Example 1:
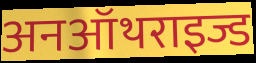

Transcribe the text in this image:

अनऑथराइज्ड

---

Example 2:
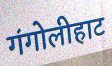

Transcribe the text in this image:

गंगोलीहाट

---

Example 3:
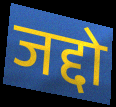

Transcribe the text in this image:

जद्दो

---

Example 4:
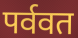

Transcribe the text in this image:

पर्ववत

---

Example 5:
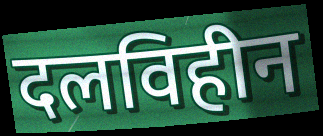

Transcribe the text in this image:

दलविहीन